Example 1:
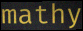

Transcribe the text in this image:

mathy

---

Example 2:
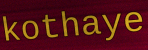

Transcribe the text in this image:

kothaye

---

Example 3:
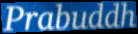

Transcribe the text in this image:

Prabuddh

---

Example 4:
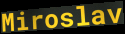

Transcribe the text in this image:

Miroslav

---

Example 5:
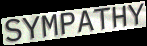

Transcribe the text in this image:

SYMPATHY